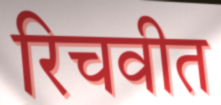
रिचवीत